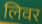
लिवर